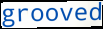
grooved